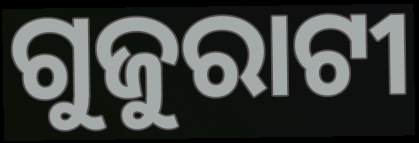
ଗୁଜୁରାଟୀ